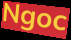
Ngoc